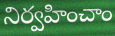
నిర్వహించాం